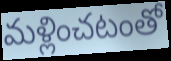
మళ్లించటంతో